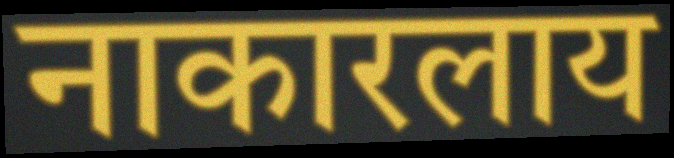
नाकारलाय